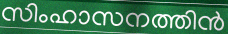
സിംഹാസനത്തിൻ